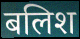
बलिश